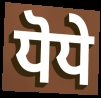
ਧੋਧੇ